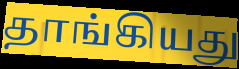
தாங்கியது